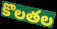
కొలతల